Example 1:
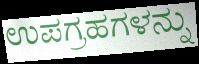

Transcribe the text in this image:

ಉಪಗ್ರಹಗಳನ್ನು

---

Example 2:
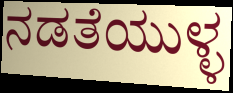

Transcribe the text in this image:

ನಡತೆಯುಳ್ಳ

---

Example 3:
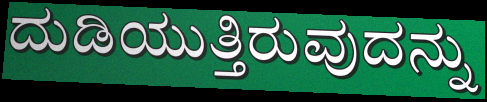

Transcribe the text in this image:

ದುಡಿಯುತ್ತಿರುವುದನ್ನು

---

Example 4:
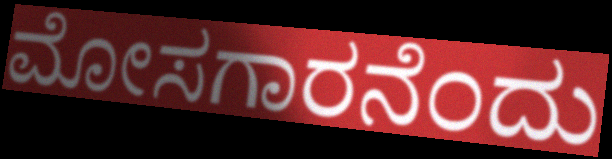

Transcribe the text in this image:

ಮೋಸಗಾರನೆಂದು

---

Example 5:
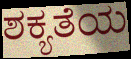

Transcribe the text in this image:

ಶಕ್ಯತೆಯ